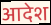
आदेश